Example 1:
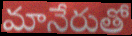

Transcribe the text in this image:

మానేరుతో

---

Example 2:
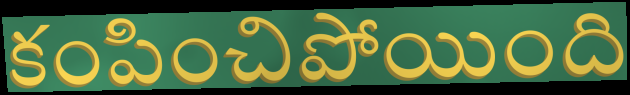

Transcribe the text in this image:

కంపించిపోయింది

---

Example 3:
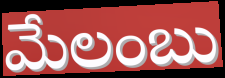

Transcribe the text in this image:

మేలంబు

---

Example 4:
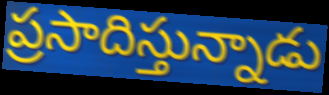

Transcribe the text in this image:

ప్రసాదిస్తున్నాడు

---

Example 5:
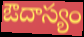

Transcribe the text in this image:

ఔదాస్యం